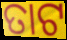
ତାଟ